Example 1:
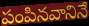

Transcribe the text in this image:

పంపినవానినే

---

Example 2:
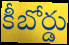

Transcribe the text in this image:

కీబోర్డు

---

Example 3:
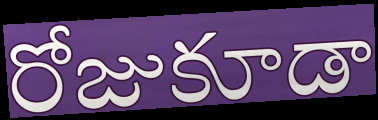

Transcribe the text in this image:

రోజుకూడా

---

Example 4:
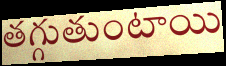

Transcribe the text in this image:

తగ్గుతుంటాయి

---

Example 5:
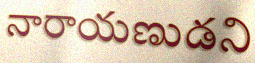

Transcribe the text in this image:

నారాయణుడని